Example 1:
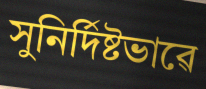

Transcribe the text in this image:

সুনিৰ্দিষ্টভাৱে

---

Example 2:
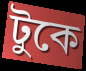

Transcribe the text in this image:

টুকে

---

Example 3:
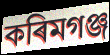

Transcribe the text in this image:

কৰিমগঞ্জ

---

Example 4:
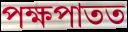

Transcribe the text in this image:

পক্ষপাতত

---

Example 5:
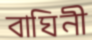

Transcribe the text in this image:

বাঘিনী